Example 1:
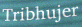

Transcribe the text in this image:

Tribhujer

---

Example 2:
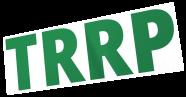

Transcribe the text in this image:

TRRP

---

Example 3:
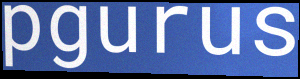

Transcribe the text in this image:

pgurus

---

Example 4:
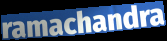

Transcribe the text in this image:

ramachandra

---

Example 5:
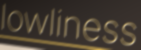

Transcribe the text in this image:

lowliness